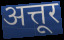
अत्तूर